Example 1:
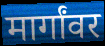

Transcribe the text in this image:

मार्गांवर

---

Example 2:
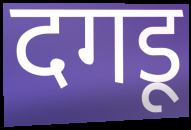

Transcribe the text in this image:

दगडू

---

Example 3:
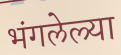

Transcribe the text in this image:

भंगलेल्या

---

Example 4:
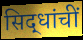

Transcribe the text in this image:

सिद्धांचीं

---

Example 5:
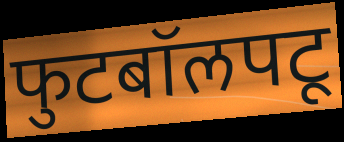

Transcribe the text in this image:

फुटबॉलपटू